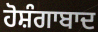
ਹੋਸ਼ੰਗਾਬਾਦ